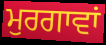
ਮੁਰਗਾਵਾਂ